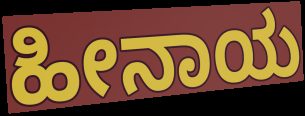
ಹೀನಾಯ